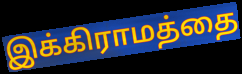
இக்கிராமத்தை